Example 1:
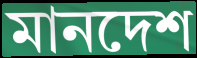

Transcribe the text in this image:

মানদেশ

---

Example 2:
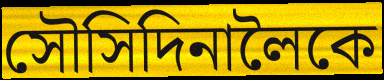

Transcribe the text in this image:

সৌসিদিনালৈকে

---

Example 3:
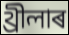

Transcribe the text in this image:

থ্ৰীলাৰ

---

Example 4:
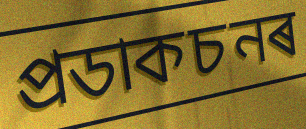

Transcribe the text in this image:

প্ৰডাকচনৰ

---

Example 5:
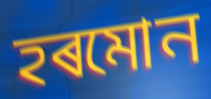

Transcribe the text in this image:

হৰমোন